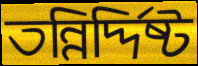
তন্নির্দ্দিষ্ট